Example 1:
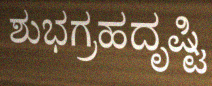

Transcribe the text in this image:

ಶುಭಗ್ರಹದೃಷ್ಟಿ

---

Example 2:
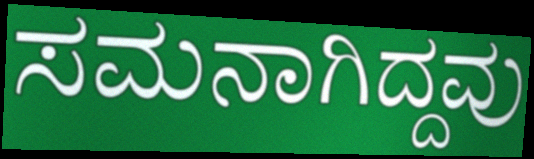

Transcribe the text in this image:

ಸಮನಾಗಿದ್ದವು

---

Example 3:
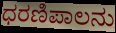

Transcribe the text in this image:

ಧರಣಿಪಾಲನು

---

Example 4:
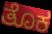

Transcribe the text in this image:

ತೊಕ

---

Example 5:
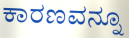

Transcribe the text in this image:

ಕಾರಣವನ್ನೂ